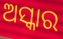
ଅସ୍କାର